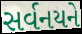
સર્વનયને